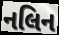
નલિન